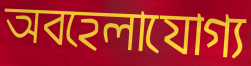
অবহেলাযোগ্য